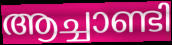
ആച്ചാണ്ടി